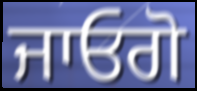
ਜਾਓਗੋ